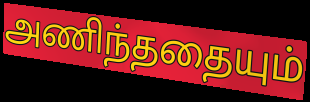
அணிந்ததையும்